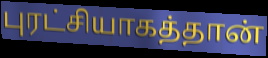
புரட்சியாகத்தான்